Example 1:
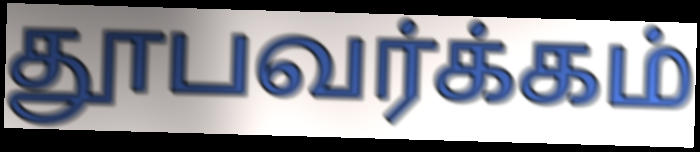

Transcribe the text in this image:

தூபவர்க்கம்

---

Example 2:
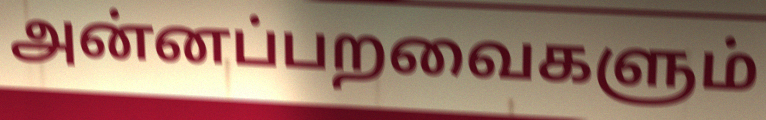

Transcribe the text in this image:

அன்னப்பறவைகளும்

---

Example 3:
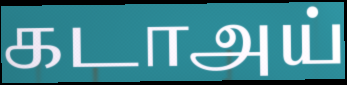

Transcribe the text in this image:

கடாஅய்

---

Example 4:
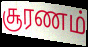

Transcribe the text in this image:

சூரணம்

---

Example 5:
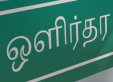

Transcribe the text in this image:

ஒளிர்தர